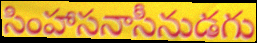
సింహాసనాసీనుడగు